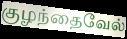
குழந்தைவேல்